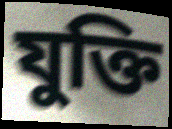
যুক্তি